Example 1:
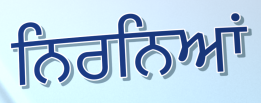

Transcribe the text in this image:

ਨਿਰਨਿਆਂ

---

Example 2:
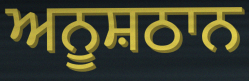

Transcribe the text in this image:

ਅਨੂਸ਼ਠਾਨ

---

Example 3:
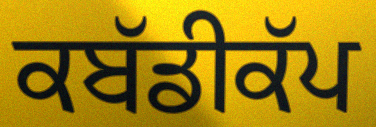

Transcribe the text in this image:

ਕਬੱਡੀਕੱਪ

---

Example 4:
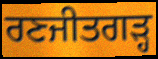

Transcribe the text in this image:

ਰਣਜੀਤਗੜ੍ਹ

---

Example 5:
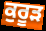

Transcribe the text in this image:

ਕੁਰੂੜ